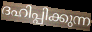
ദഹിപ്പിക്കുന്ന